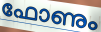
ഫോണും